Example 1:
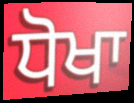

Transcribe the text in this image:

ਧੋਖਾ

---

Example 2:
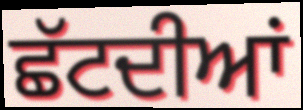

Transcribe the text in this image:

ਛੱਟਦੀਆਂ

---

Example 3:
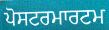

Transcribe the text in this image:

ਪੋਸਟਰਮਾਰਟਮ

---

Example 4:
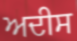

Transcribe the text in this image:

ਅਦੀਸ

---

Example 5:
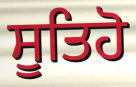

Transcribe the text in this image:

ਸੂਤਿਹੋ